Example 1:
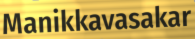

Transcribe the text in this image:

Manikkavasakar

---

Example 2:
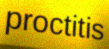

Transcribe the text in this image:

proctitis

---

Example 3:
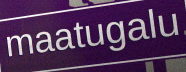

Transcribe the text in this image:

maatugalu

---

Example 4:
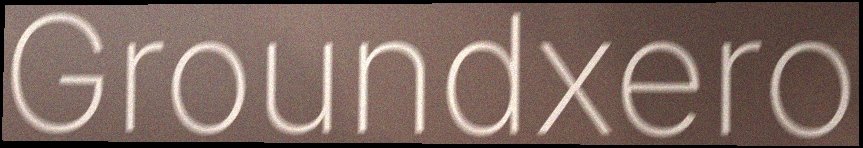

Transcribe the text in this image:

Groundxero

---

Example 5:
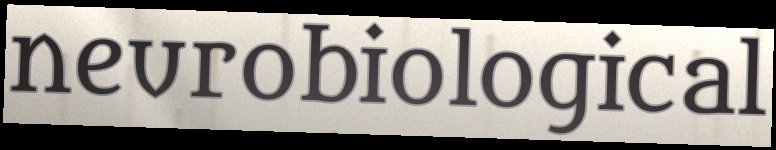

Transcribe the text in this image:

neurobiological